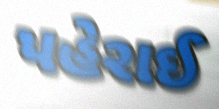
પહેરાઈ